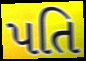
પતિ